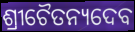
ଶ୍ରୀଚୈତନ୍ୟଦେବ